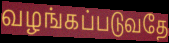
வழங்கப்படுவதே